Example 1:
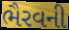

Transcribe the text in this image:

ભૈરવની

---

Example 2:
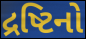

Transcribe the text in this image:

દ્રષ્ટિનો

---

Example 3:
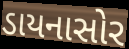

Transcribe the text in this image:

ડાયનાસોર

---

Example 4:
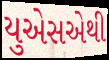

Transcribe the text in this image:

યુએસએથી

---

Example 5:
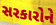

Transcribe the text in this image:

સરકારોને